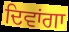
ਦਿਵਾਂਗਾ